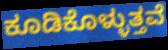
ಕೂಡಿಕೊಳ್ಳುತ್ತವೆ